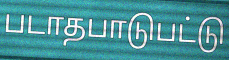
படாதபாடுபட்டு